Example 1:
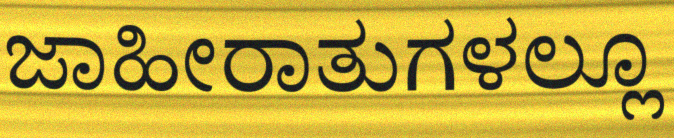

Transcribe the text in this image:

ಜಾಹೀರಾತುಗಳಲ್ಲೂ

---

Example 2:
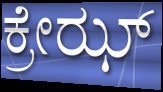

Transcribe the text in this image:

ಕ್ರೇಝ್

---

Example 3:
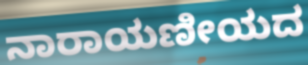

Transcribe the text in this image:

ನಾರಾಯಣೀಯದ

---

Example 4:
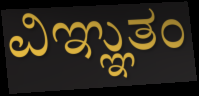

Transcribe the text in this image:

ವಿಞ್ಞುತಂ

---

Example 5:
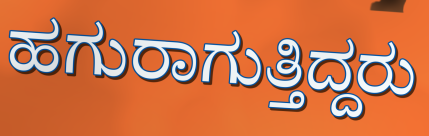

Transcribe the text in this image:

ಹಗುರಾಗುತ್ತಿದ್ದರು